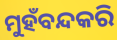
ମୁହଁବନ୍ଦକରି